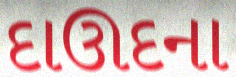
દાઊદના